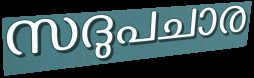
സദുപചാര